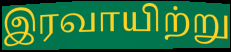
இரவாயிற்று